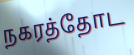
நகரத்தோட